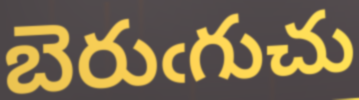
బెరుఁగుచు